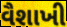
વૈશાખી